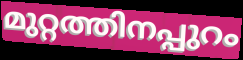
മുറ്റത്തിനപ്പുറം